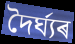
দৈৰ্ঘ্যৰ